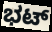
ಭಟ್